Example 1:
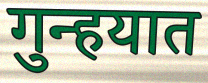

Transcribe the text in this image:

गुन्हयात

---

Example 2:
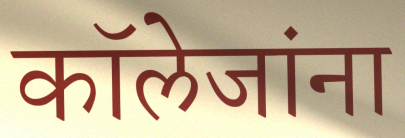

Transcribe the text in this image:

कॉलेजांना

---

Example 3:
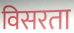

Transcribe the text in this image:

विसरता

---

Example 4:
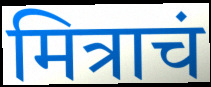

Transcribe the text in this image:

मित्राचं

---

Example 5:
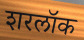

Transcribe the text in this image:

शरलॉक